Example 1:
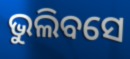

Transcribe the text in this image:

ଭୁଲିବସେ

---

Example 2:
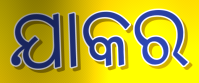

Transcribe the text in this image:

ଯାକର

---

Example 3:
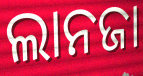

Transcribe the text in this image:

ଲାନଜା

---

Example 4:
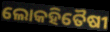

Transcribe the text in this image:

ଲୋକହିତୈଷୀ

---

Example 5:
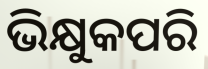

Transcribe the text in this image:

ଭିକ୍ଷୁକପରି